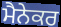
ਮੈਨੇਕਰ